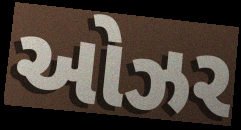
ઓઝર